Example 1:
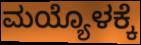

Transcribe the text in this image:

ಮಯ್ಯೊಳಕ್ಕೆ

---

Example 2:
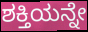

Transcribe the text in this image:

ಶಕ್ತಿಯನ್ನೇ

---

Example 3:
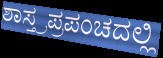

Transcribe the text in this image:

ಶಾಸ್ತ್ರಪ್ರಪಂಚದಲ್ಲಿ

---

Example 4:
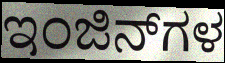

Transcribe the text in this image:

ಇಂಜಿನ್‌ಗಳ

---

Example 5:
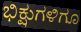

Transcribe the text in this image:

ಭಿಕ್ಷುಗಳಿಗೂ